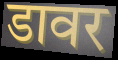
डावर